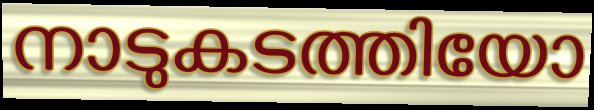
നാടുകടത്തിയോ